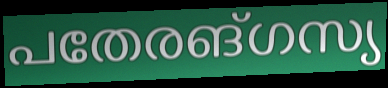
പതേരങ്ഗസ്യ